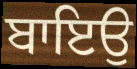
ਬਾਇਉ